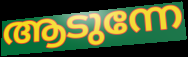
ആടുന്നേ